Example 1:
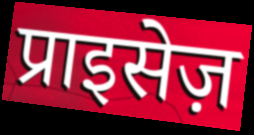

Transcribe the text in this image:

प्राइसेज़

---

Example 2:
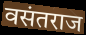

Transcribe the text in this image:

वसंतराज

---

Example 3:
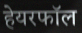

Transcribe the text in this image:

हेयरफॉल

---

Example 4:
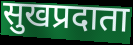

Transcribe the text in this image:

सुखप्रदाता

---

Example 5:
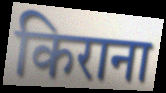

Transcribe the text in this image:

किराना